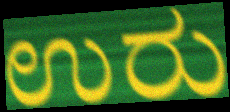
ಉರು